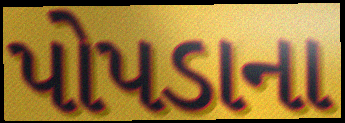
પોપડાના